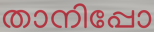
താനിപ്പോ